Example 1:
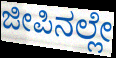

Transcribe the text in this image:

ಜೀಪಿನಲ್ಲೇ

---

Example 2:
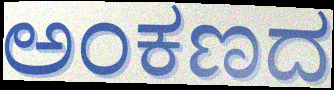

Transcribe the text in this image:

ಅಂಕಣದ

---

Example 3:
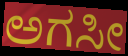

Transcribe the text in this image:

ಅಗಸೀ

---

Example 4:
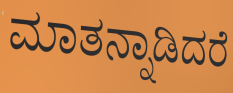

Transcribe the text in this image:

ಮಾತನ್ನಾಡಿದರೆ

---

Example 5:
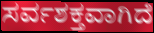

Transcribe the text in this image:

ಸರ್ವಶಕ್ತವಾಗಿದೆ